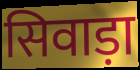
सिवाड़ा